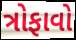
ત્રોફાવો